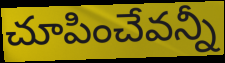
చూపించేవన్నీ